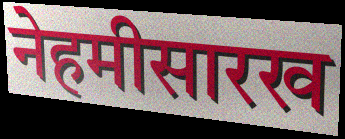
नेहमीसारख